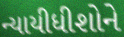
ન્યાયીધીશોને